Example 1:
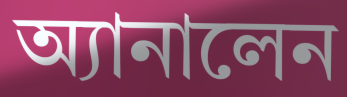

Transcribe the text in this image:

অ্যানালেন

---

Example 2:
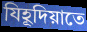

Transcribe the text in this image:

যিহূদিয়াতে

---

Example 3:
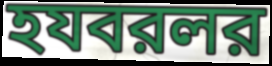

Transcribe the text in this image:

হযবরলর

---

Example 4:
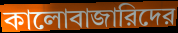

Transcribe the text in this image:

কালোবাজারিদের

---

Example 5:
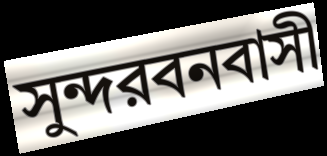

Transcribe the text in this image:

সুন্দরবনবাসী